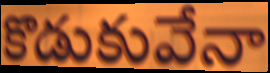
కొడుకువేనా